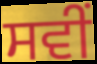
ਸਵੀਂ